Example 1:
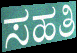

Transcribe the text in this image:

ಸಹತಿ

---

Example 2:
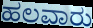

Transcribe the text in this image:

ಹಲವಾರು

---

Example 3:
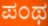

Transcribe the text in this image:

ಪಂಥ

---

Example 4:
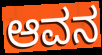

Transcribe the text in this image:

ಆವನ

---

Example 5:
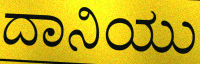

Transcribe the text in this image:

ದಾನಿಯು